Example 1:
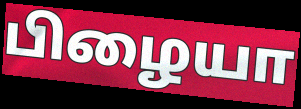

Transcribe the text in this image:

பிழையா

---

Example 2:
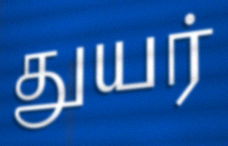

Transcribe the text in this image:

துயர்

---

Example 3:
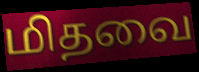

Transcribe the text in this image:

மிதவை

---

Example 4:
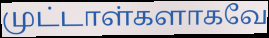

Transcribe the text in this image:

முட்டாள்களாகவே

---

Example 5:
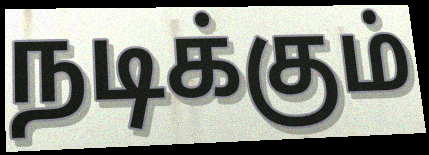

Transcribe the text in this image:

நடிக்கும்